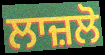
ਲਾਜ਼ਲੋ